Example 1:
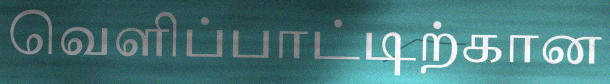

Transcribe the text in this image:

வெளிப்பாட்டிற்கான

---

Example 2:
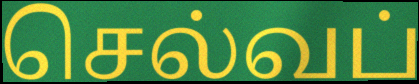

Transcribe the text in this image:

செல்வப்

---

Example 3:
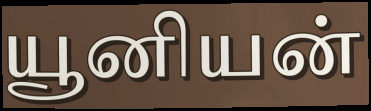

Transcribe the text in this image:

யூனியன்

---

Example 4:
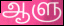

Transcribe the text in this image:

ஆளு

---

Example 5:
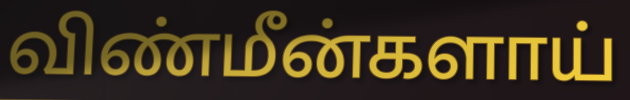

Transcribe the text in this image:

விண்மீன்களாய்